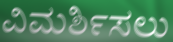
ವಿಮರ್ಶಿಸಲು